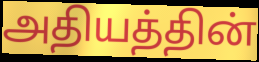
அதியத்தின்